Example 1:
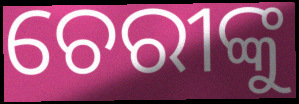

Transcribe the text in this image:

ଚେରୀଙ୍କୁ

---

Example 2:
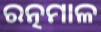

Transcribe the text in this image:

ରତ୍ନମାଳ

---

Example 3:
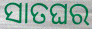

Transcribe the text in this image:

ସାତଘର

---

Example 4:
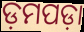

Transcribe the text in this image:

ଡ଼ମପଡ଼ା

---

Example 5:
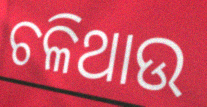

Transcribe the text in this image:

ଚଳିଥାଉ